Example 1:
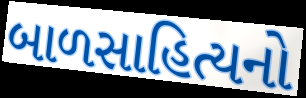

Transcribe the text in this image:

બાળસાહિત્યનો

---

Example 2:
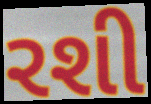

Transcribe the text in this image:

રશી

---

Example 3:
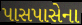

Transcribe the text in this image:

પાસપાસેના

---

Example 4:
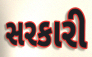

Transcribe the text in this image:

સરકારી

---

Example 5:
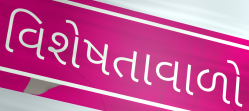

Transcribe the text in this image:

વિશેષતાવાળો